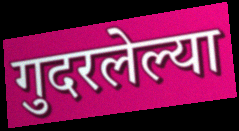
गुदरलेल्या